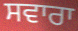
ਸਵਾਰਾ